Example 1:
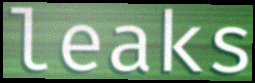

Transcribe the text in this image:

leaks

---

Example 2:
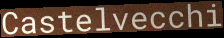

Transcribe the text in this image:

Castelvecchi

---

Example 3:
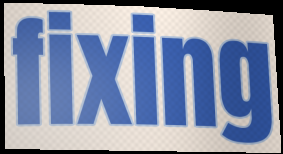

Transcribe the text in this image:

fixing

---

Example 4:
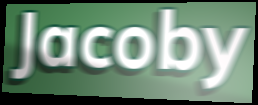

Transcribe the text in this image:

Jacoby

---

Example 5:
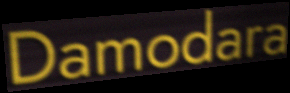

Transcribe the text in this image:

Damodara